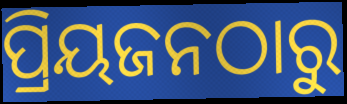
ପ୍ରିୟଜନଠାରୁ